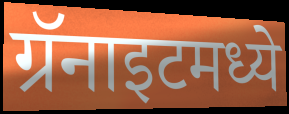
ग्रॅनाइटमध्ये